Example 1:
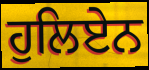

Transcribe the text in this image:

ਹੁਲਿਏਨ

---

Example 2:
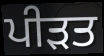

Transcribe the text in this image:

ਪੀਡ਼ਤ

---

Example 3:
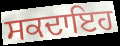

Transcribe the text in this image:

ਸਕਦਾਇਹ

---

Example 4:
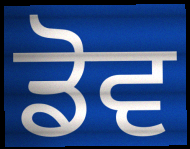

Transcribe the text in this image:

ਡੋਵ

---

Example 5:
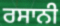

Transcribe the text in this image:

ਰਸਾਨੀ